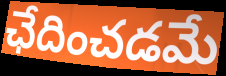
ఛేదించడమే